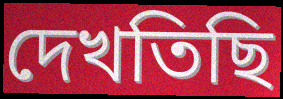
দেখতিছি